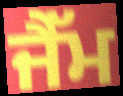
ਜੈੱਮ